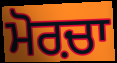
ਮੋਰ਼ਚਾ